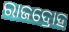
ରାଜଦ୍ରୋହ